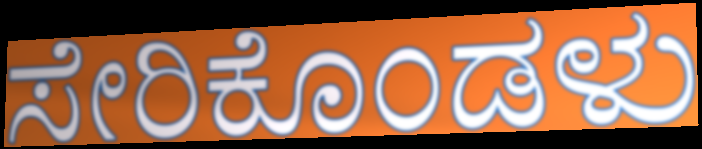
ಸೇರಿಕೊಂಡಳು